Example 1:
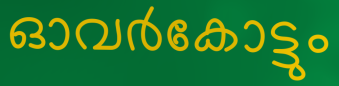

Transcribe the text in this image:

ഓവർകോട്ടും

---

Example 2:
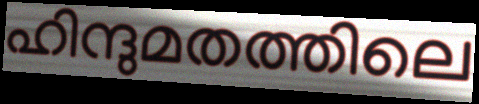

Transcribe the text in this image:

ഹിന്ദുമതത്തിലെ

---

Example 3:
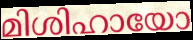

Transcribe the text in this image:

മിശിഹായോ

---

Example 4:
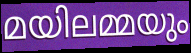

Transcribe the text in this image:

മയിലമ്മയും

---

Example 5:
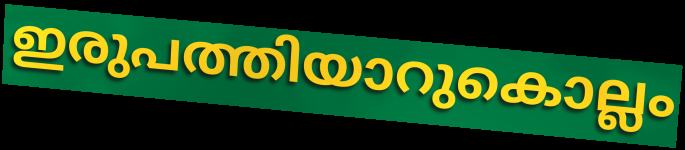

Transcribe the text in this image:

ഇരുപത്തിയാറുകൊല്ലം